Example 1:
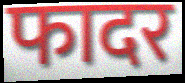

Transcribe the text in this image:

फादर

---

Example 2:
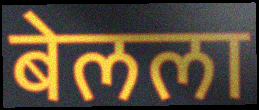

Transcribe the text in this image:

बेलला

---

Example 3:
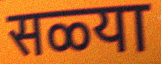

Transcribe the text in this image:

सळ्या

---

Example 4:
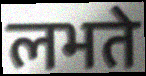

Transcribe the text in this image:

लभते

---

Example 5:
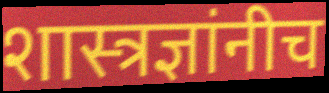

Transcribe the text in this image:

शास्त्रज्ञांनीच